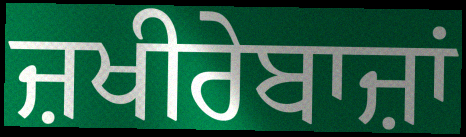
ਜ਼ਖੀਰੇਬਾਜ਼ਾਂ